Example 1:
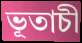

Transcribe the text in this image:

ভূতাচী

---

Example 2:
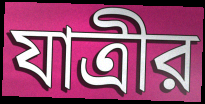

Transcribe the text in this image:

যাত্রীর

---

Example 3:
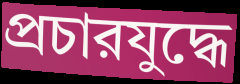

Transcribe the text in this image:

প্রচারযুদ্ধে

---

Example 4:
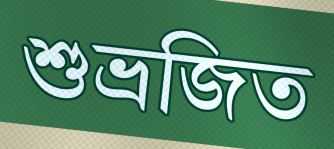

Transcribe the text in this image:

শুভ্রজিত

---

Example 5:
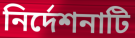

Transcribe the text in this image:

নির্দেশনাটি